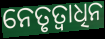
ନେତୃତ୍ୱାଧିନ